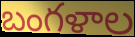
బంగళాల